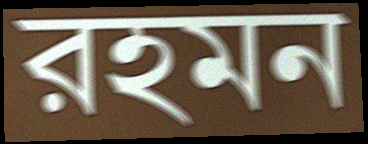
রহমন